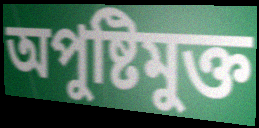
অপুষ্টিমুক্ত